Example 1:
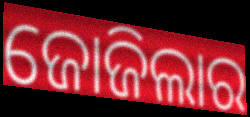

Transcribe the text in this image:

ଜୋଜିଲାର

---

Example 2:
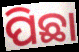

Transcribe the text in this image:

ପିଛା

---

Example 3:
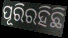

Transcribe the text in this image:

ପୂରିରହିଛି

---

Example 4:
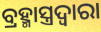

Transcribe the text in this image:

ବ୍ରହ୍ମାସ୍ତ୍ରଦ୍ୱାରା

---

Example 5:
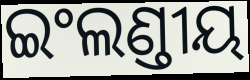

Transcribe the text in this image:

ଇଂଲଣ୍ଡୀୟ